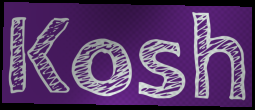
Kosh